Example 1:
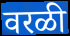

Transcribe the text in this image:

वरळी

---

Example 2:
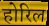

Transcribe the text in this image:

होरिल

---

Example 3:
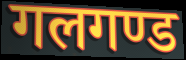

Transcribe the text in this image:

गलगण्ड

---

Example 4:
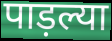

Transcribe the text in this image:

पाड़ल्या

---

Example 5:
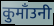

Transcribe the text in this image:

कुमाँउनी